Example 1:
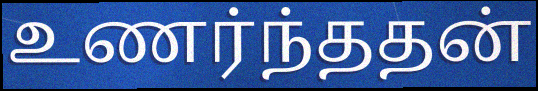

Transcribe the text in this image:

உணர்ந்ததன்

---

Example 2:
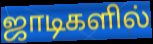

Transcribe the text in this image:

ஜாடிகளில்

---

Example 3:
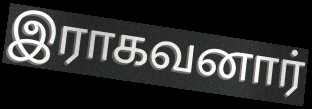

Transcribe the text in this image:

இராகவனார்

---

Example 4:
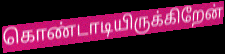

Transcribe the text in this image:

கொண்டாடியிருக்கிறேன்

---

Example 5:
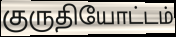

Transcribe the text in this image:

குருதியோட்டம்